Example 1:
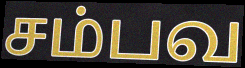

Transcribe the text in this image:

சம்பவ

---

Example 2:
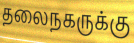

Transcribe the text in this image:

தலைநகருக்கு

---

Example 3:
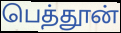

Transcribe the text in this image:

பெத்தூன்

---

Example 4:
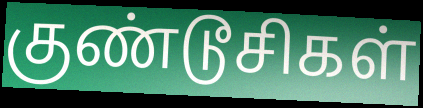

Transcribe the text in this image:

குண்டூசிகள்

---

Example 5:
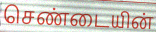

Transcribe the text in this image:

செண்டையின்